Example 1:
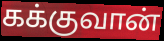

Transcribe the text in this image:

கக்குவான்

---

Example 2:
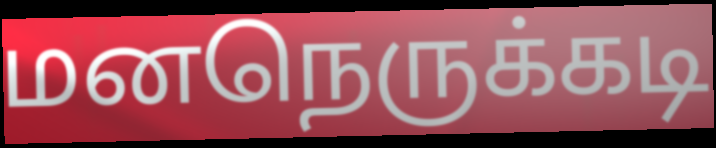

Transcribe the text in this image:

மனநெருக்கடி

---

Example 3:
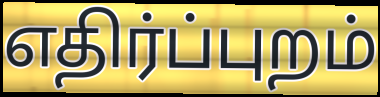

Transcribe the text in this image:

எதிர்ப்புறம்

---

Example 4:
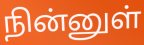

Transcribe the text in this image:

நின்னுள்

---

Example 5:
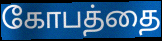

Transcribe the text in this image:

கோபத்தை